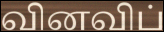
வினவிப்